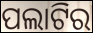
ପଲାଟିର